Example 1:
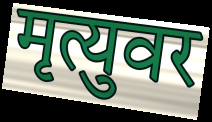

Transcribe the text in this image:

मृत्युवर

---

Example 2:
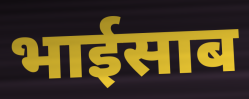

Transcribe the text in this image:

भाईसाब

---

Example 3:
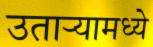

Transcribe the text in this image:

उताऱ्यामध्ये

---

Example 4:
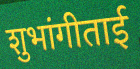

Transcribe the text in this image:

शुभांगीताई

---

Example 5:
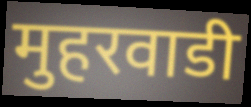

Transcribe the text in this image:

मुहरवाडी